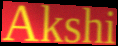
Akshi